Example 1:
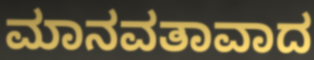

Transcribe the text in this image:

ಮಾನವತಾವಾದ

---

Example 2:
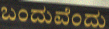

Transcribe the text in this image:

ಬಂದುವೆಂದು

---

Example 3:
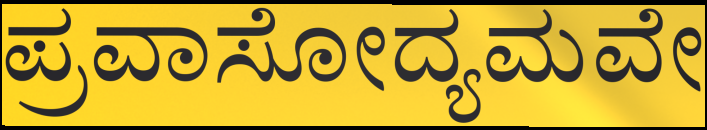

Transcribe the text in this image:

ಪ್ರವಾಸೋದ್ಯಮವೇ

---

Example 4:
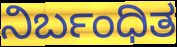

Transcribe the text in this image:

ನಿರ್ಬಂಧಿತ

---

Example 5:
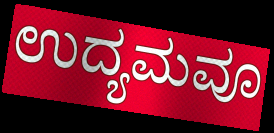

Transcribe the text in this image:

ಉದ್ಯಮವೂ